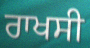
ਰਾਖਸੀ